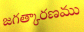
జగత్కారణము